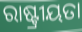
ରାଷ୍ଟ୍ରୀୟତା